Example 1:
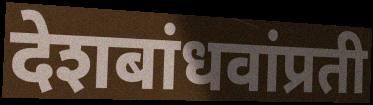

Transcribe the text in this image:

देशबांधवांप्रती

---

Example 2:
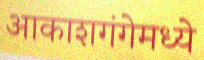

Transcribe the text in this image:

आकाशगंगेमध्ये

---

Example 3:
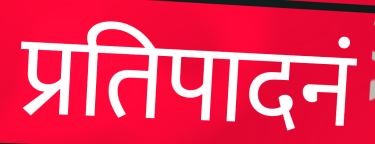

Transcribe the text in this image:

प्रतिपादनं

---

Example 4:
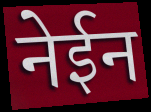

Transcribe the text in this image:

नेईन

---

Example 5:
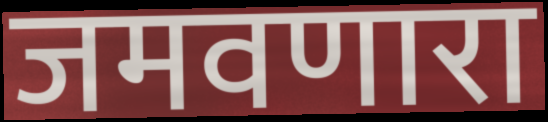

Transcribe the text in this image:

जमवणारा